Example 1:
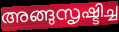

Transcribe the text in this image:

അങ്ങുസൃഷ്ടിച്ച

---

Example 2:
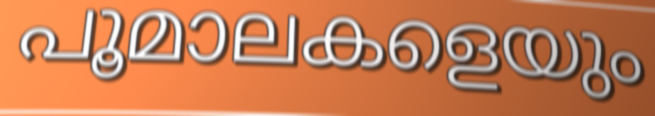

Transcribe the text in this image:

പൂമാലകളെയും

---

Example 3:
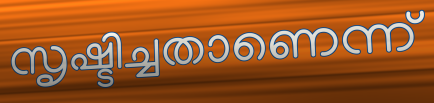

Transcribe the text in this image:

സൃഷ്ടിച്ചതാണെന്ന്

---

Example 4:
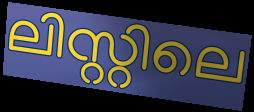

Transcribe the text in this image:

ലിസ്റ്റിലെ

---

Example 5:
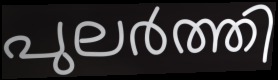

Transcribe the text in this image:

പുലർത്തി